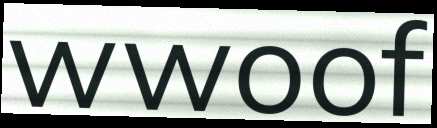
wwoof